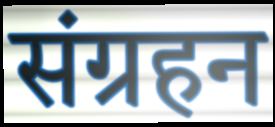
संग्रहन